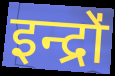
इन्द्रो॑